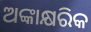
ଅଙ୍କାକ୍ଷରିକ